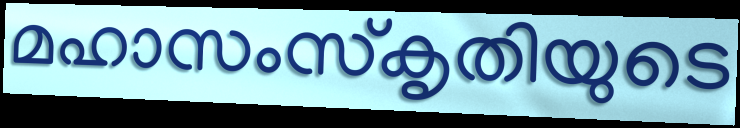
മഹാസംസ്കൃതിയുടെ